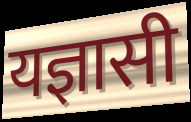
यज्ञासी